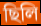
ছিলি